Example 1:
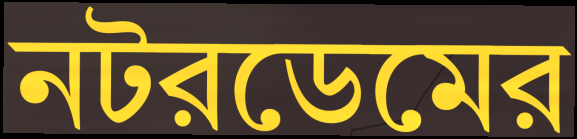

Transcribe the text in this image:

নটরডেমের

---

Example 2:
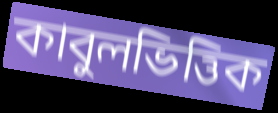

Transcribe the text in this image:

কাবুলভিত্তিক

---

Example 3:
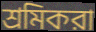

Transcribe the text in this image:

শ্রমিকরা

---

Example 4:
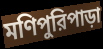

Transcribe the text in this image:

মণিপুরিপাড়া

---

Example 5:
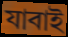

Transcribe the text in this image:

যাবাই